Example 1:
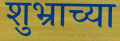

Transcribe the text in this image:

शुभ्राच्या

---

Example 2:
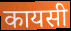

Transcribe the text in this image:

कायसी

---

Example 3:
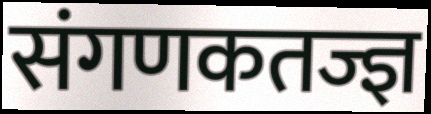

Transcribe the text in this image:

संगणकतज्ज्ञ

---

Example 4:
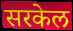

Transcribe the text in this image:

सरकेल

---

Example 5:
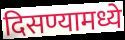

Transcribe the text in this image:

दिसण्यामध्ये